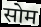
सोम